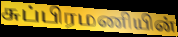
சுப்பிரமணியின்